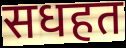
सधहत